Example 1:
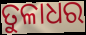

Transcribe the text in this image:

ତୁଳାଧର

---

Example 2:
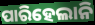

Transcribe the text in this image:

ପାରିହେଲାନି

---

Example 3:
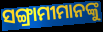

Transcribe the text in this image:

ସଙ୍ଗ୍ରାମୀମାନଙ୍କୁ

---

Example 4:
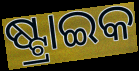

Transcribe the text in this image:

ଷ୍ଟ୍ରାଇକ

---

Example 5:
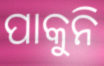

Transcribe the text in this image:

ପାକୁନି